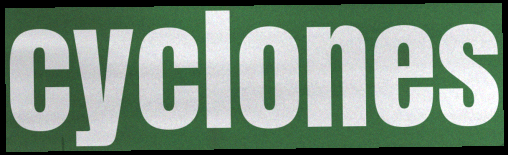
cyclones